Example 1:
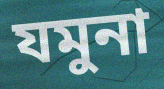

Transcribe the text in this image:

যমুনা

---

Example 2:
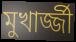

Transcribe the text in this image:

মুখার্জ্জী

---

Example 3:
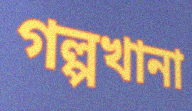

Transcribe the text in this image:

গল্পখানা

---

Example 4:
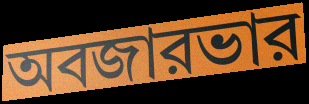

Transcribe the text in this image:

অবজারভার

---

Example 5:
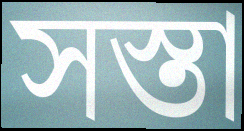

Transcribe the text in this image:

সস্তা